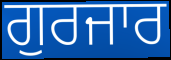
ਗੁਰਜਾਰ